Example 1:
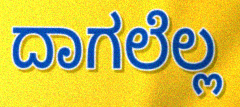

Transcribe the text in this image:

ದಾಗಲೆಲ್ಲ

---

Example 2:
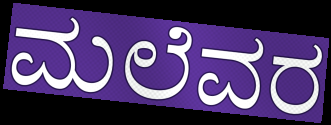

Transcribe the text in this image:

ಮಲೆವರ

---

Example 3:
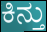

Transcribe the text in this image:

ಕಿನ್ತು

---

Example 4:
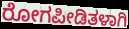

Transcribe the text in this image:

ರೋಗಪೀಡಿತಳಾಗಿ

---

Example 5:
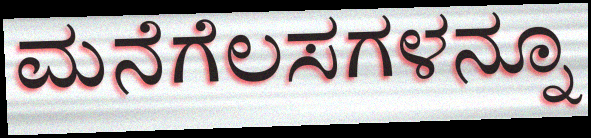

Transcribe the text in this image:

ಮನೆಗೆಲಸಗಳನ್ನೂ